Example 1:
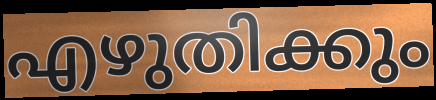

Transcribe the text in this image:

എഴുതിക്കും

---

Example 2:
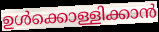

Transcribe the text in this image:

ഉൾക്കൊള്ളിക്കാൻ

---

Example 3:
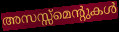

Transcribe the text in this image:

അസസ്സ്മെന്റുകൾ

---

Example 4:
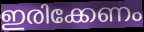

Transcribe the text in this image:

ഇരിക്കേണം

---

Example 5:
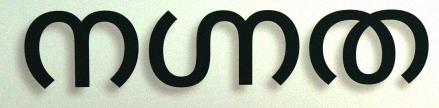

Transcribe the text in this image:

നഗ്നത